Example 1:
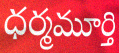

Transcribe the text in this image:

ధర్మమూర్తి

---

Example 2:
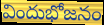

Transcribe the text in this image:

విందుభోజనం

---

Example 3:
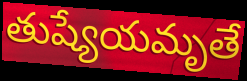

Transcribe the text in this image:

తుష్యేయమృతే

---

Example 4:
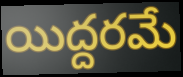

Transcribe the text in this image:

యిద్దరమే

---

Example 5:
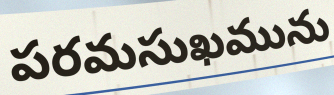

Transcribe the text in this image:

పరమసుఖమును